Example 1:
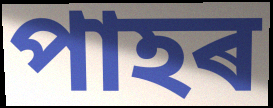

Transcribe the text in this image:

পাহৰ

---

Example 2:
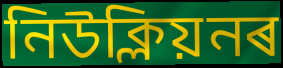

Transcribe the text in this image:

নিউক্লিয়নৰ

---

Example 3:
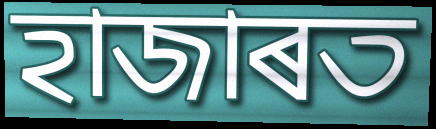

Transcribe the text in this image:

হাজাৰত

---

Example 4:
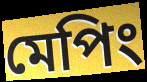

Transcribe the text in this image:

মেপিং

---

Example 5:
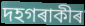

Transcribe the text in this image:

দহগৰাকীৰ